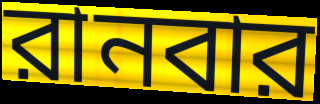
রানবার